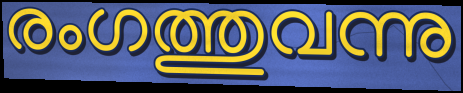
രംഗത്തുവന്നു